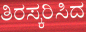
ತಿರಸ್ಕರಿಸಿದ